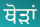
ਥੋੜਾਂ